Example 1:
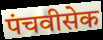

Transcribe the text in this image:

पंचवीसेक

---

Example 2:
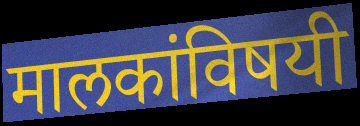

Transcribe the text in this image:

मालकांविषयी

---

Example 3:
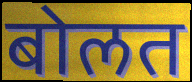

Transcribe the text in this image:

बोलत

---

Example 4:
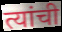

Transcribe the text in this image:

त्यांची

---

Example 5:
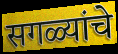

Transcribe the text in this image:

सगळ्यांचे